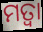
ମତ୍ୱା